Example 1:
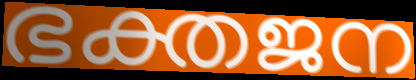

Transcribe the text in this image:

ഭക്തജന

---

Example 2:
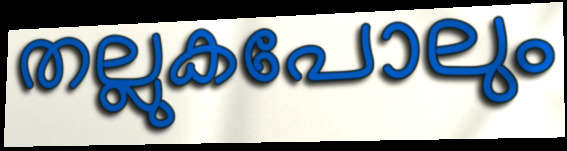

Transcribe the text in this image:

തല്ലുകപോലും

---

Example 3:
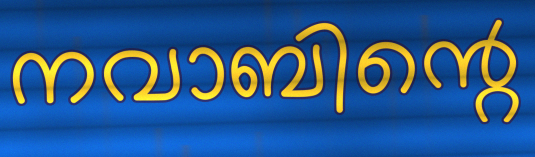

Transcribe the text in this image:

നവാബിന്റെ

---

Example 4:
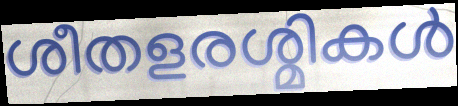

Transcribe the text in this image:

ശീതളരശ്മികൾ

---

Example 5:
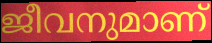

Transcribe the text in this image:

ജീവനുമാണ്